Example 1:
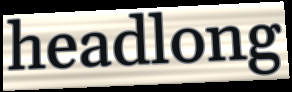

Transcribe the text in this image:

headlong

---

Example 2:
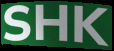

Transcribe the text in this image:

SHK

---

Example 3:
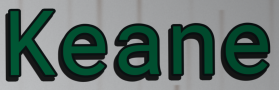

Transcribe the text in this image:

Keane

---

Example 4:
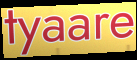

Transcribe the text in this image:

tyaare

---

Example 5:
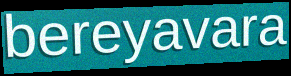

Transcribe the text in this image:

bereyavara